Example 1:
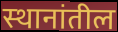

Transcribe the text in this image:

स्थानांतील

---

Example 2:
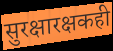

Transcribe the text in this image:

सुरक्षारक्षकही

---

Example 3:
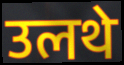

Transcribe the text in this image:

उलथे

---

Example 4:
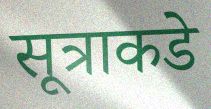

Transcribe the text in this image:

सूत्राकडे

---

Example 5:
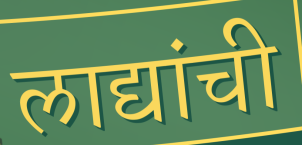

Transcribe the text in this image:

लाद्यांची